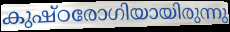
കുഷ്ഠരോഗിയായിരുന്നു